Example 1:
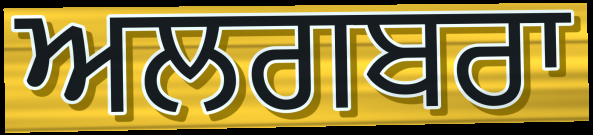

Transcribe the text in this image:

ਅਲਗਬਰਾ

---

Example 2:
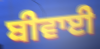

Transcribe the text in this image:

ਬੀਵਾਈ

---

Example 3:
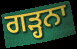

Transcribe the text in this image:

ਗੜ੍ਹਨਾ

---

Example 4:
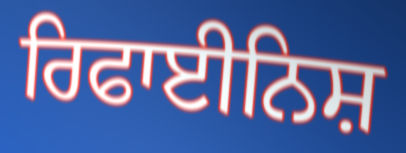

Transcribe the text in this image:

ਰਿਫਾਈਨਿਸ਼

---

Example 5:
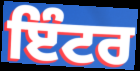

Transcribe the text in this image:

ਇੰਟਰ